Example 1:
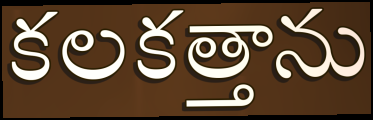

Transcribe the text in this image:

కలకత్తాను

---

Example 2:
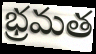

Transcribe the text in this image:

భ్రమత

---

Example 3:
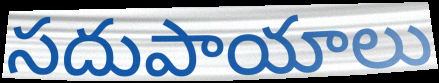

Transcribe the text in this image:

సదుపాయాలు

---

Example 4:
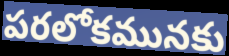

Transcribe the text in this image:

పరలోకమునకు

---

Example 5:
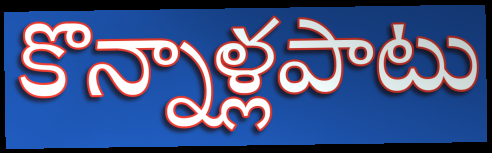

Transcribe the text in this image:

కొన్నాళ్లపాటు